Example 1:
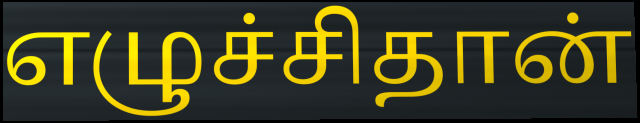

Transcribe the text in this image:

எழுச்சிதான்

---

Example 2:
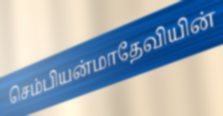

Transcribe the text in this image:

செம்பியன்மாதேவியின்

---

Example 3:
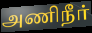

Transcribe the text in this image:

அணிநீர்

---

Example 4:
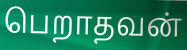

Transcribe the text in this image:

பெறாதவன்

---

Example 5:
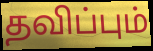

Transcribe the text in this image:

தவிப்பும்